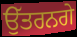
ਉੱਤਰਨਗੇ